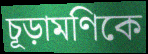
চূড়ামণিকে